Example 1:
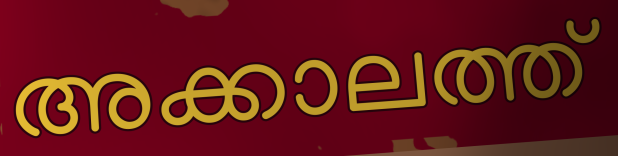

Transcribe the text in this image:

അക്കാലത്ത്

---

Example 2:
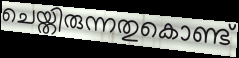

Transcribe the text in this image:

ചെയ്തിരുന്നതുകൊണ്ട്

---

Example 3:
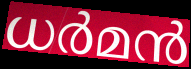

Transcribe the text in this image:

ധർമൻ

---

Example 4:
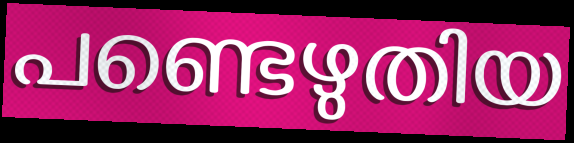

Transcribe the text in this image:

പണ്ടെഴുതിയ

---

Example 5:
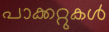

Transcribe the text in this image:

പാക്കറ്റുകൾ